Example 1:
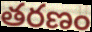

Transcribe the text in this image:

తరణం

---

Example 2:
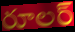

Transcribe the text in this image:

రూలర్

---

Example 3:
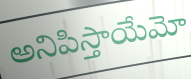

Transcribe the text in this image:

అనిపిస్తాయేమో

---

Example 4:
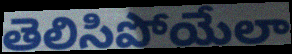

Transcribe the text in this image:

తెలిసిపోయేలా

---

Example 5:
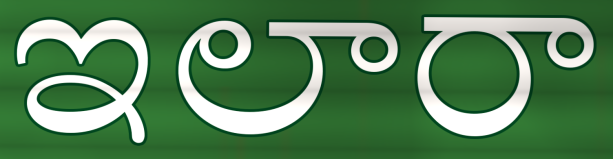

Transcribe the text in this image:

ఇలారా